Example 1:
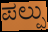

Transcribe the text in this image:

ಪಲ್ಪು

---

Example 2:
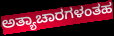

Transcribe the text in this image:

ಅತ್ಯಾಚಾರಗಳಂತಹ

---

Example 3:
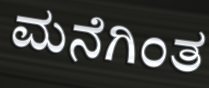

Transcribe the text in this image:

ಮನೆಗಿಂತ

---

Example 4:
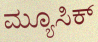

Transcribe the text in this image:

ಮ್ಯೂಸಿಕ್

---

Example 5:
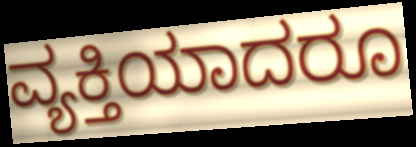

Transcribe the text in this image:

ವ್ಯಕ್ತಿಯಾದರೂ